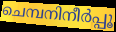
ചെമ്പനിനീർപ്പൂ